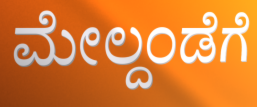
ಮೇಲ್ದಂಡೆಗೆ